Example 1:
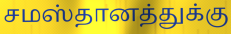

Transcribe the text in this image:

சமஸ்தானத்துக்கு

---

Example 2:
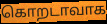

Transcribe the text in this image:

கொறடாவாக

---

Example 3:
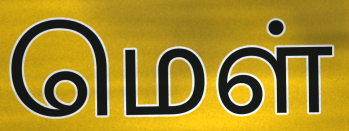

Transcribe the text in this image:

மெள்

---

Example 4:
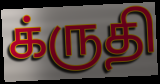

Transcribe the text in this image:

க்ருதி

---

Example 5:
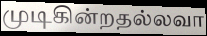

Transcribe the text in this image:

முடிகின்றதல்லவா